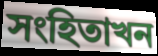
সংহিতাখন